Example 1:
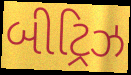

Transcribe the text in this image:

બીટ્રિઝ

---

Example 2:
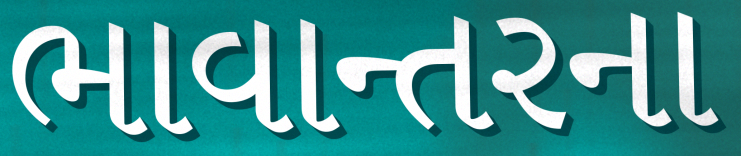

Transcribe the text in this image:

ભાવાન્તરના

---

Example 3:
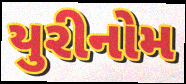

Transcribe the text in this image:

યુરીનોમ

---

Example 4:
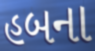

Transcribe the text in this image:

હબના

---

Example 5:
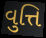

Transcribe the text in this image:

વુત્તિ